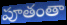
పూతంతా